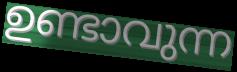
ഉണ്ടാവുന്ന